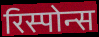
रिस्पोन्स